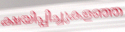
ക്ഷയിപ്പിച്ചുകളഞ്ഞ